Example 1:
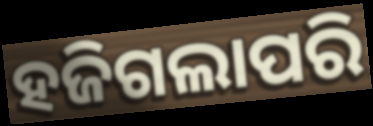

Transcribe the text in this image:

ହଜିଗଲାପରି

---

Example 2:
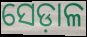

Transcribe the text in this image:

ସେଡ଼ାଳ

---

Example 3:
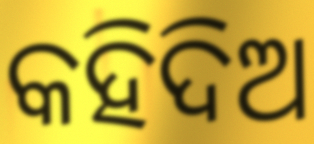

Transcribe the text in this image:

କହିଦିଅ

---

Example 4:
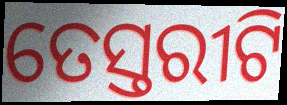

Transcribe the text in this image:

ତେସ୍ତରୀଟି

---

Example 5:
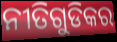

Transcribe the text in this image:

ନୀତିଗୁଡିକର